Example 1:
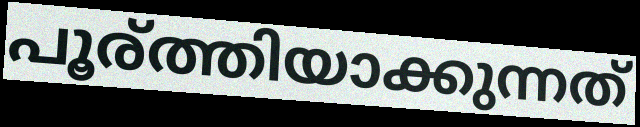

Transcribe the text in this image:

പൂര്ത്തിയാക്കുന്നത്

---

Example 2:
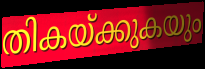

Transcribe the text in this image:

തികയ്ക്കുകയും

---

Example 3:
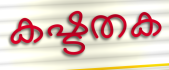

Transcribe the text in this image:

കഷ്ടതക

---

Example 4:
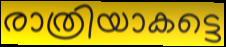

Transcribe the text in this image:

രാത്രിയാകട്ടെ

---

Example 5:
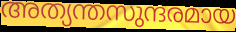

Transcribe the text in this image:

അത്യന്തസുന്ദരമായ